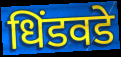
धिंडवडे